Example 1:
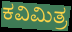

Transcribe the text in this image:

ಕವಿಮಿತ್ರ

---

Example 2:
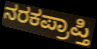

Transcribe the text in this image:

ನರಕಪ್ರಾಪ್ತಿ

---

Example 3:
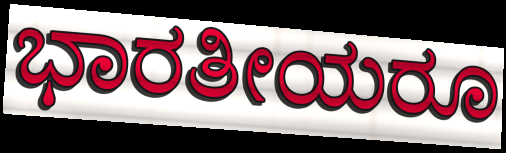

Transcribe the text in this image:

ಭಾರತೀಯರೂ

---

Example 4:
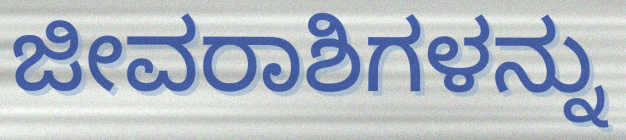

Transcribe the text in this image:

ಜೀವರಾಶಿಗಳನ್ನು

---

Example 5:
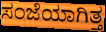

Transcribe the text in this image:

ಸಂಜೆಯಾಗಿತ್ತ